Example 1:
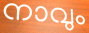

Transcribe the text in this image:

നാവും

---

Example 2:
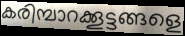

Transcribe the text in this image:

കരിമ്പാറക്കൂട്ടങ്ങളെ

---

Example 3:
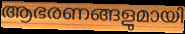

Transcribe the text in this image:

ആഭരണങ്ങളുമായി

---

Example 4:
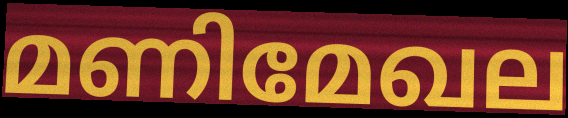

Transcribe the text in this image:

മണിമേഖല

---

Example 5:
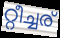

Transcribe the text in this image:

റ്റീച്ചര്